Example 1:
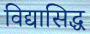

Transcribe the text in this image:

विद्यासिद्ध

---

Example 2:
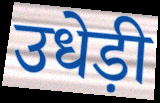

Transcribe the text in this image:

उधेड़ी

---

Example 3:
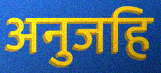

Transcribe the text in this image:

अनुजहि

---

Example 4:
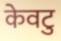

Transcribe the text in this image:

केवटु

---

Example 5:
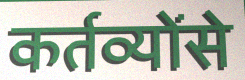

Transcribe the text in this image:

कर्तव्योंसे